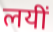
लयीं